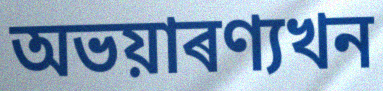
অভয়াৰণ্যখন